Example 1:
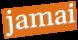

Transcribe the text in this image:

jamai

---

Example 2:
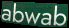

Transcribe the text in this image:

abwab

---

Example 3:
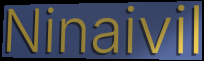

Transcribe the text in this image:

Ninaivil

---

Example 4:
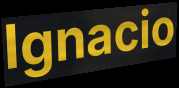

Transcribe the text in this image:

Ignacio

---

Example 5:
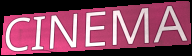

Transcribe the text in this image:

CINEMA